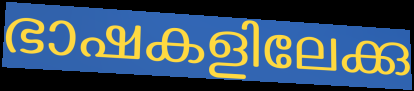
ഭാഷകളിലേക്കു